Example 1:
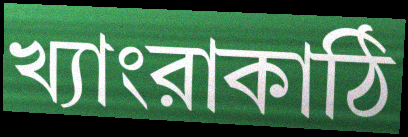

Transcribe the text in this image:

খ্যাংরাকাঠি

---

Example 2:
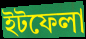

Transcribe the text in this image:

ইটফেলা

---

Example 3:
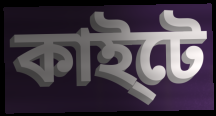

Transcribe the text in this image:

কাই্টে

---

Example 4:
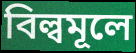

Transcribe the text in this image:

বিল্বমূলে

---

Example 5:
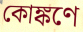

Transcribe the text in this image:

কোঙ্কণে